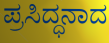
ಪ್ರಸಿದ್ಧನಾದ